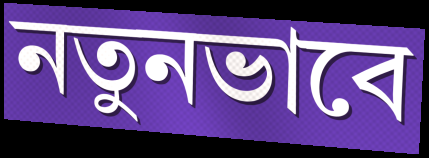
নতুনভাবে